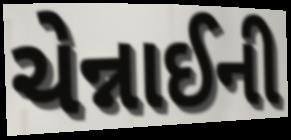
ચેન્નાઈની